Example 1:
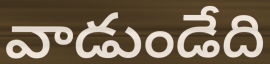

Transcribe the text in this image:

వాడుండేది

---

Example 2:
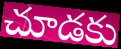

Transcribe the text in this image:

చూడకు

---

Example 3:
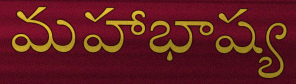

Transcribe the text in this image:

మహాభాష్య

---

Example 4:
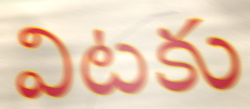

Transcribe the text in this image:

విటకు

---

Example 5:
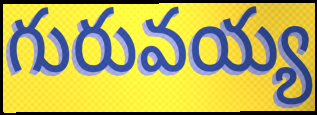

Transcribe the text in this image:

గురువయ్య